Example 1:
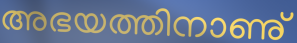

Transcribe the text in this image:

അഭയത്തിനാണു്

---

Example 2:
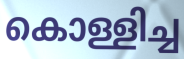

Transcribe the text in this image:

കൊള്ളിച്ച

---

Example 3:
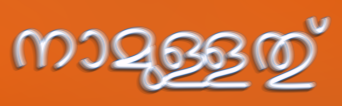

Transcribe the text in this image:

നാമുള്ളതു്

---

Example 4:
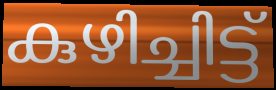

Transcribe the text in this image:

കുഴിച്ചിട്ട്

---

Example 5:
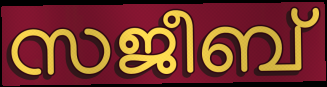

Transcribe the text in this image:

സജീബ്